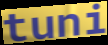
tuni